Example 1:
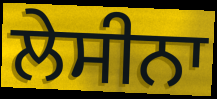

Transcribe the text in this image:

ਲੇਸੀਨਾ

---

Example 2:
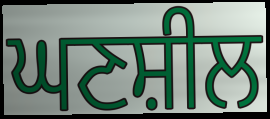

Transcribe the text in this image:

ਘਣਸ਼ੀਲ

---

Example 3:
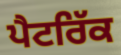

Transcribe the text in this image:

ਪੈਟਰਿੱਕ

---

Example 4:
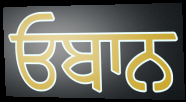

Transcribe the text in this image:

ਓਬਾਨ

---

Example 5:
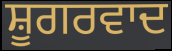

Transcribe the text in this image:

ਸ਼ੂਗਰਵਾਦ